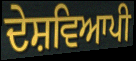
ਦੇਸ਼ਵਿਆਪੀ